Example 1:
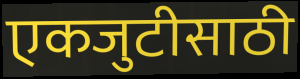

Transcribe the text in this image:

एकजुटीसाठी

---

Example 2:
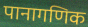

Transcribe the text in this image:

पानागणिक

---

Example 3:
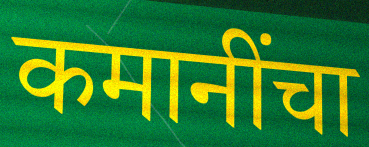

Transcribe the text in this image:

कमानींचा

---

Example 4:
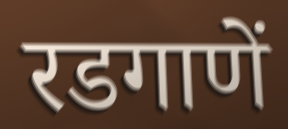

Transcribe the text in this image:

रडगाणें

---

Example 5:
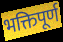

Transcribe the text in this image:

भक्तिपूर्ण